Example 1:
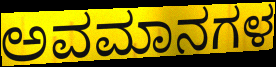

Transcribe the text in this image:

ಅವಮಾನಗಳ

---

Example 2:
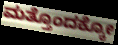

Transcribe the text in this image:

ಮತ್ತೊಂದಕ್ಕೋ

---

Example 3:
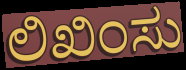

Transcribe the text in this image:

ಲಿಖಿಂಸು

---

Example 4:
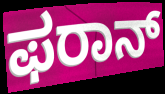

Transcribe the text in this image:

ಫರಾನ್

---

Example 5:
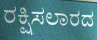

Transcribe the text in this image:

ರಕ್ಷಿಸಲಾರದ